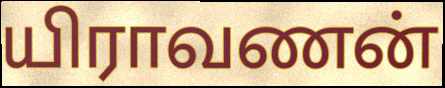
யிராவணன்